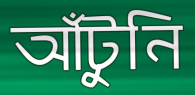
আঁটুনি